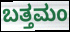
ಬತ್ತಮಂ